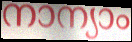
നാന്യാം